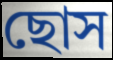
ছোস